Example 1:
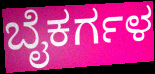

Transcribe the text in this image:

ಬೈಕರ್ಗಳ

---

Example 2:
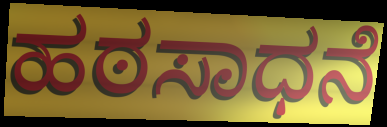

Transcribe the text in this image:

ಹಠಸಾಧನೆ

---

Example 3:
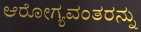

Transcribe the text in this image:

ಆರೋಗ್ಯವಂತರನ್ನು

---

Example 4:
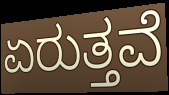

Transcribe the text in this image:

ಏರುತ್ತವೆ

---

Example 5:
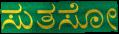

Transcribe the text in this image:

ಸುತಸೋ